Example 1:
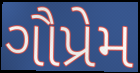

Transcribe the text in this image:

ગૌપ્રેમ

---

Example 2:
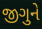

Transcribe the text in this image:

જીગુને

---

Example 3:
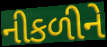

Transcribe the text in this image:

નીકળીને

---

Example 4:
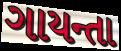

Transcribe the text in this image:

ગાયન્તા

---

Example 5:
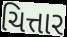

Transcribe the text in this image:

ચિત્તાર